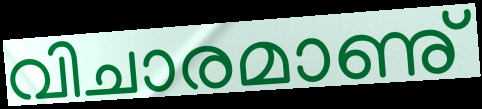
വിചാരമാണു്